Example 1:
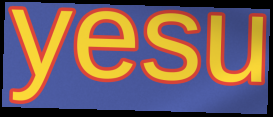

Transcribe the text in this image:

yesu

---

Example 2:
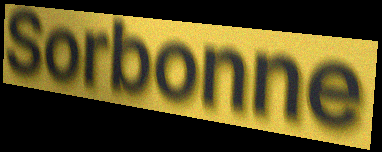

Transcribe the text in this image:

Sorbonne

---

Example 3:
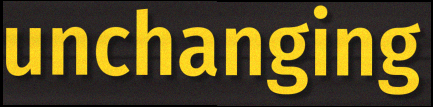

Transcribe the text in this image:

unchanging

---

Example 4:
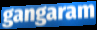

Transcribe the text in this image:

gangaram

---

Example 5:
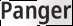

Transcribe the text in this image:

Panger